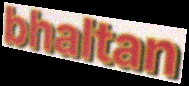
bhaltan